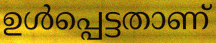
ഉൾപ്പെട്ടതാണ്